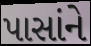
પાસાંને